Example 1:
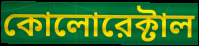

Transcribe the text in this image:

কোলোরেক্টাল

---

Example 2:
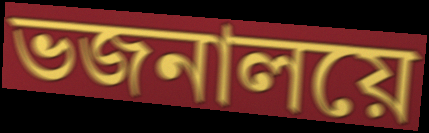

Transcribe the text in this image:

ভজনালয়ে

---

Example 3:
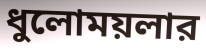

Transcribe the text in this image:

ধুলোময়লার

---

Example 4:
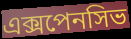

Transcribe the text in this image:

এক্সপেনসিভ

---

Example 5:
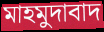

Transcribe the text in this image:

মাহমুদাবাদ